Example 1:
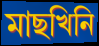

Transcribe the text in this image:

মাছখিনি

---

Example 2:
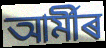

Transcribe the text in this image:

আৰ্মীৰ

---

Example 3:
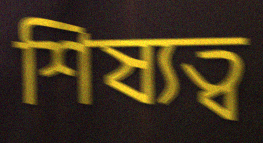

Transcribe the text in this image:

শিষ্যত্ব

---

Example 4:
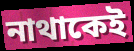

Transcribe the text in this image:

নাথাকেই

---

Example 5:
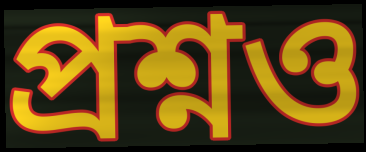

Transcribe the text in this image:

প্ৰশ্নও